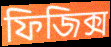
ফিজিক্স